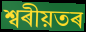
শ্বৰীয়তৰ